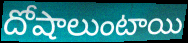
దోషాలుంటాయి